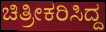
ಚಿತ್ರೀಕರಿಸಿದ್ದ